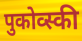
पुकोव्स्की